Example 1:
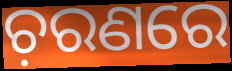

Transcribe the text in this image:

ଚ଼ରଣରେ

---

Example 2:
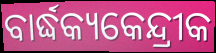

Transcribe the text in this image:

ବାର୍ଦ୍ଧକ୍ୟକେନ୍ଦ୍ରୀକ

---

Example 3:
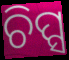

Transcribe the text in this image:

ଚିପ୍ସ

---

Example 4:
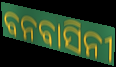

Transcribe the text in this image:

ବନବାସିନୀ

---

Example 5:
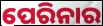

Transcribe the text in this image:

ପେରିନାର